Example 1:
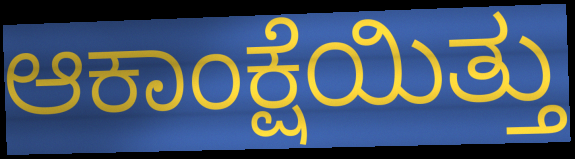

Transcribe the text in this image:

ಆಕಾಂಕ್ಷೆಯಿತ್ತು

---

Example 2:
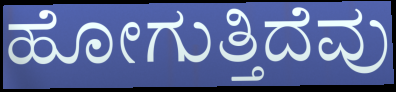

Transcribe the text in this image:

ಹೋಗುತ್ತಿದೆವು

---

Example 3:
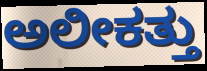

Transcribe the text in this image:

ಅಲೀಕತ್ತು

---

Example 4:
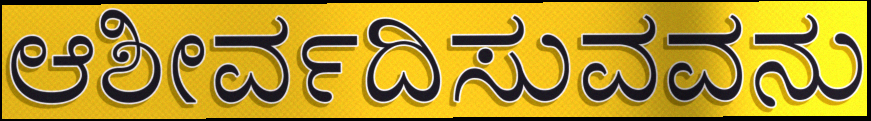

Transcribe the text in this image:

ಆಶೀರ್ವದಿಸುವವನು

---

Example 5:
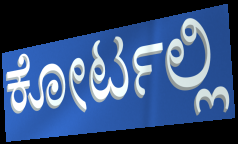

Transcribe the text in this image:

ಕೋರ್ಟಲ್ಲಿ